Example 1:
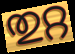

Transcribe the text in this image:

തുറ്റ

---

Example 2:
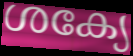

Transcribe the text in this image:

ശക്യേ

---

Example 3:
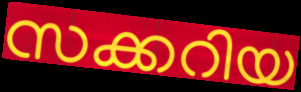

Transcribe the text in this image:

സക്കറിയ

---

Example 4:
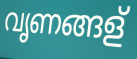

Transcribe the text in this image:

വൃണങ്ങള്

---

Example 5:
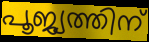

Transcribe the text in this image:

പൂജ്യത്തിന്